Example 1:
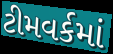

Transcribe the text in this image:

ટીમવર્કમાં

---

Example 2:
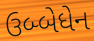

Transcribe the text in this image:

ઉબ્બેધેન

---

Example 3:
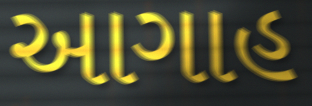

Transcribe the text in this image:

આગાહ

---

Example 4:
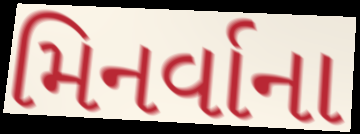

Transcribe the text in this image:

મિનર્વાના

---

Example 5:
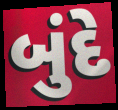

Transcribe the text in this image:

બુંદે